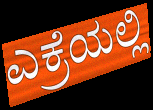
ಎಕ್ರೆಯಲ್ಲಿ